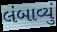
લંબાવ્યું